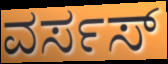
ವರ್ಸಸ್